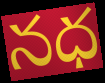
నధ